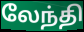
லேந்தி